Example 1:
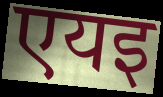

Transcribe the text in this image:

एयइ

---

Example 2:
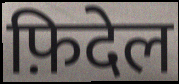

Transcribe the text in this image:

फ़िदेल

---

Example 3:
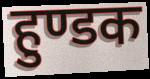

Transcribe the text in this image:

हुण्डक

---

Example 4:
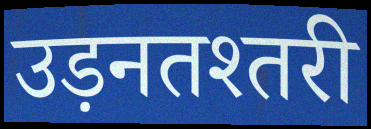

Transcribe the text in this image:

उड़नतश्तरी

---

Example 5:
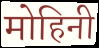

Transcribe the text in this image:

मोहिनी